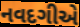
નવદગીએ